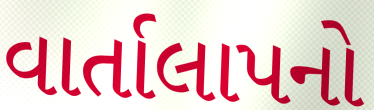
વાર્તાલાપનો